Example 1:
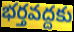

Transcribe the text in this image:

భర్తవద్దకు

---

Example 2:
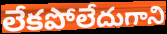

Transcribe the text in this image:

లేకపోలేదుగాని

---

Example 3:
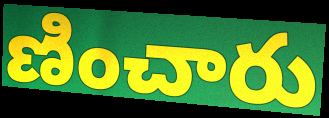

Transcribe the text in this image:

ణించారు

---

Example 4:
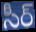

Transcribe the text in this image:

సీర్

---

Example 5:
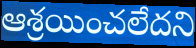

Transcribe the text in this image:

ఆశ్రయించలేదని